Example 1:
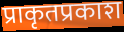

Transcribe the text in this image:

प्राकृतप्रकाश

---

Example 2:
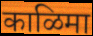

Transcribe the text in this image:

काळिमा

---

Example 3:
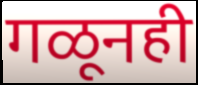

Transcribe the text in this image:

गळूनही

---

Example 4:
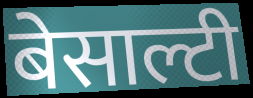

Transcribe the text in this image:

बेसाल्टी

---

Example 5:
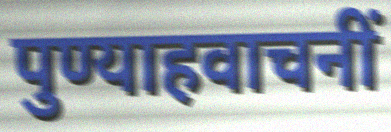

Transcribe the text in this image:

पुण्याहवाचनीं